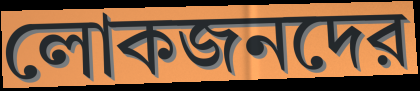
লোকজনদের